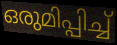
ഒരുമിപ്പിച്ച്